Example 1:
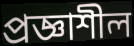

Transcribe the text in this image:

প্রজ্ঞাশীল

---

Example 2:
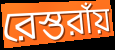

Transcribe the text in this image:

রেস্তরাঁয়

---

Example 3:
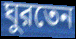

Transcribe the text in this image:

ঘুরতেন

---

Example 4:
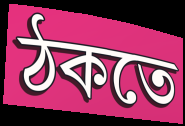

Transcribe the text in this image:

ঠকতে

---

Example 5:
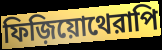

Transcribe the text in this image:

ফিজ়িয়োথেরাপি